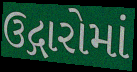
ઉદ્ગારોમાં